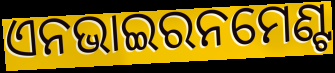
ଏନଭାଇରନମେଣ୍ଟ